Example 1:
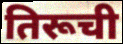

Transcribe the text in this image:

तिरूची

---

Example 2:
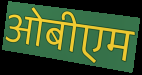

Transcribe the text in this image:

ओबीएम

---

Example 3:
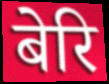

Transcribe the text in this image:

बेरि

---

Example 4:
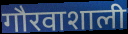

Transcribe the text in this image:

गौरवाशाली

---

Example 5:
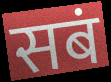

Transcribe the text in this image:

सबं